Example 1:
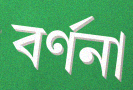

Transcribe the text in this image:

বৰ্ণনা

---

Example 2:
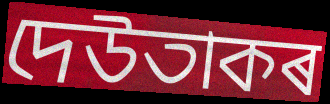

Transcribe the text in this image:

দেউতাকৰ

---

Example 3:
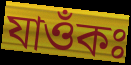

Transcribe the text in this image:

যাওঁকঃ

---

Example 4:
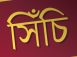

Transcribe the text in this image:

সিঁচি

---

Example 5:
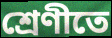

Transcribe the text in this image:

শ্ৰেণীতে